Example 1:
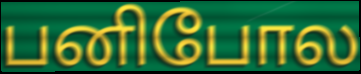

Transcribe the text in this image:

பனிபோல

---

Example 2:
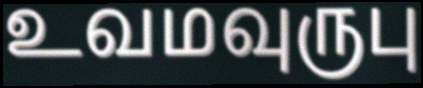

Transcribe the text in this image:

உவமவுருபு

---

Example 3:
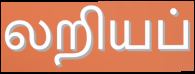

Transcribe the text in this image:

லறியப்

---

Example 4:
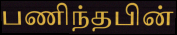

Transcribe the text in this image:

பணிந்தபின்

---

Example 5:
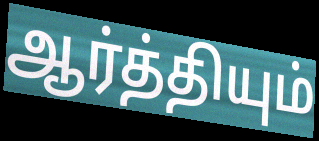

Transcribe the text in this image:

ஆர்த்தியும்